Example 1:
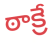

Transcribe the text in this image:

ఠాక్రే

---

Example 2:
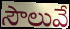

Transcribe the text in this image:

సౌలువే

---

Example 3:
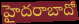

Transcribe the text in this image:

హైదరాబాదో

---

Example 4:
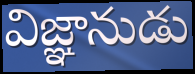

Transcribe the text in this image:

విజ్ఞానుడు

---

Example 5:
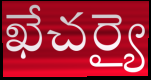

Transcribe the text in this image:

ఖేచర్యై